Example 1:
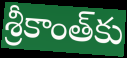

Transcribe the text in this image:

శ్రీకాంత్‌కు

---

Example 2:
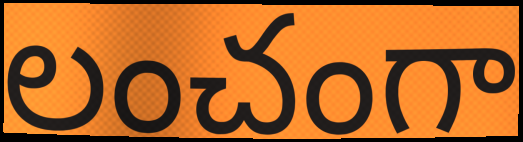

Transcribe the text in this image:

లంచంగా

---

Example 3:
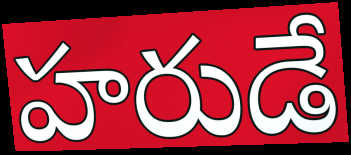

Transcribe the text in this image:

హరుడే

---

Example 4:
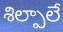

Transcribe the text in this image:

శిల్పాలే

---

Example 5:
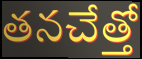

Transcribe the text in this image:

తనచేత్తో